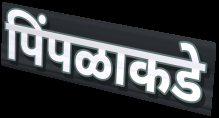
पिंपळाकडे